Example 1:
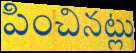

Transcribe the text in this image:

పించినట్లు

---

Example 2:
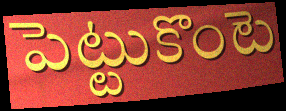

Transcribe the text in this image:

పెట్టుకొంటె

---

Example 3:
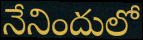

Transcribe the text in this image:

నేనిందులో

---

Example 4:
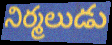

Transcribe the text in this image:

నిర్మలుడు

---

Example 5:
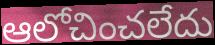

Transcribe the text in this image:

ఆలోచించలేదు